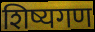
शिष्यगण